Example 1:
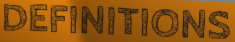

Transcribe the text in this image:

DEFINITIONS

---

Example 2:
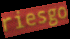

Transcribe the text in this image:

riesgo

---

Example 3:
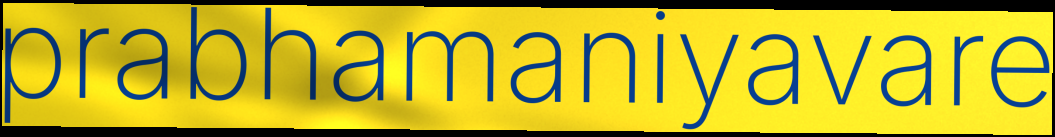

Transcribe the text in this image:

prabhamaniyavare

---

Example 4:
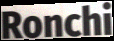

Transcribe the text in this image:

Ronchi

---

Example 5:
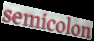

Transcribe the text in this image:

semicolon